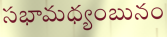
సభామధ్యంబునం